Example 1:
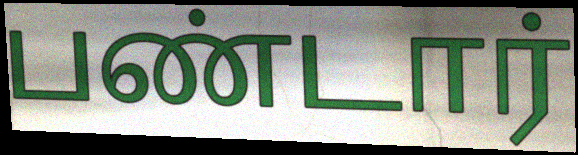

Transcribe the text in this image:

பண்டார்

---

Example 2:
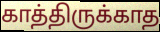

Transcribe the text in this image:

காத்திருக்காத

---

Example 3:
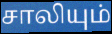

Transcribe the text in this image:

சாலியும்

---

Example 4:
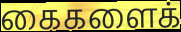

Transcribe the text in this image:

கைகளைக்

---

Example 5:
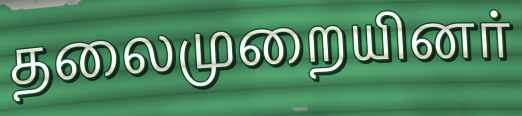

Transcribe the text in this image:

தலைமுறையினர்